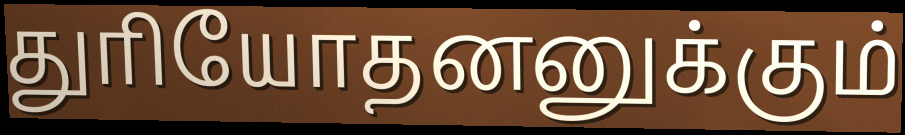
துரியோதனனுக்கும்